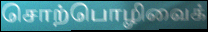
சொற்பொழிவைக்